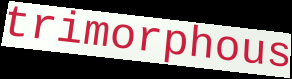
trimorphous